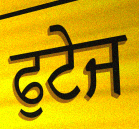
ਫੁਟੇਜ